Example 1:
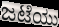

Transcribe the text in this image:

ಜಟೆಯು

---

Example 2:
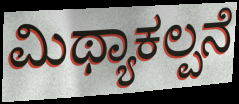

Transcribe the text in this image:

ಮಿಥ್ಯಾಕಲ್ಪನೆ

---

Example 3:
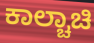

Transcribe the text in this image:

ಕಾಲ್ಚಾಚಿ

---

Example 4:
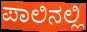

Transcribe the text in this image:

ಪಾಲಿನಲ್ಲಿ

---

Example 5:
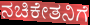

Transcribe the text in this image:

ನಚಿಕೇತನಿಗೆ